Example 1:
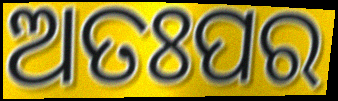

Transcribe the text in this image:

ଅତଃପର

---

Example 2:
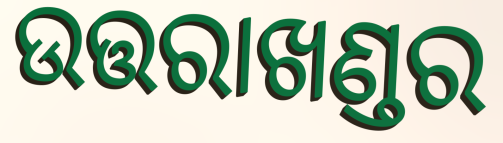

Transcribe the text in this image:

ଉତ୍ତରାଖଣ୍ଡର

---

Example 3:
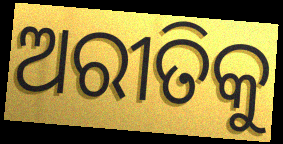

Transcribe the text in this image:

ଅରୀତିକୁ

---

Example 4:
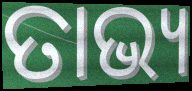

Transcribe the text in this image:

ତାଭ୍ୟ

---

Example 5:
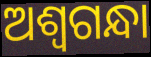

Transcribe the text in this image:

ଅଶ୍ୱଗନ୍ଧା